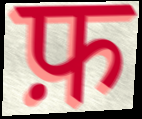
फ़